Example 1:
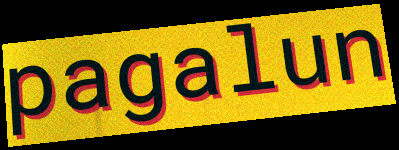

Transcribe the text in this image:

pagalun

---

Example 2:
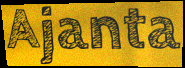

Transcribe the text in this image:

Ajanta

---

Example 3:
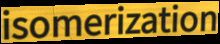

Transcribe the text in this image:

isomerization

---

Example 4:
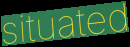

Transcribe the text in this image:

situated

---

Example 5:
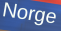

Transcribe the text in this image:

Norge